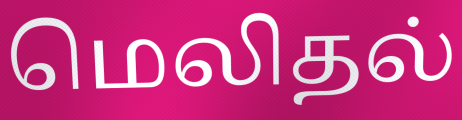
மெலிதல்